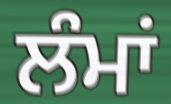
ਲੰਮਾਂ